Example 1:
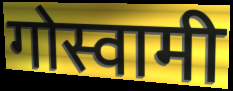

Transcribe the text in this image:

गोस्वामी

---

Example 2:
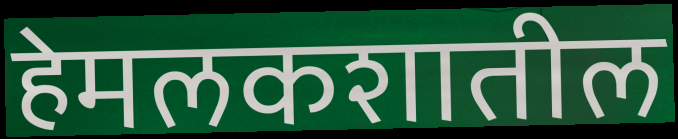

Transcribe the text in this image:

हेमलकशातील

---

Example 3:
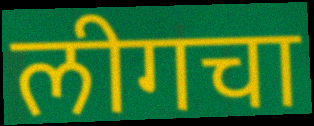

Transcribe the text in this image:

लीगचा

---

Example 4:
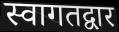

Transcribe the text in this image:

स्वागतद्वार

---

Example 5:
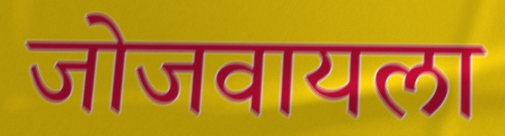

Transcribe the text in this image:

जोजवायला